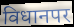
विधानपर